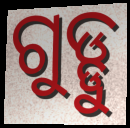
ଗୁଡ୍ଡୁ